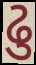
ઢુ